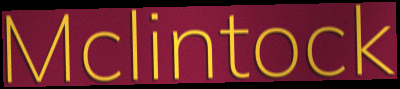
Mclintock